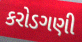
કરોડગણી